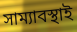
সাম্যাবস্থাই